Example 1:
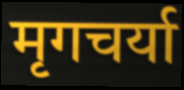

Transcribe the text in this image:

मृगचर्या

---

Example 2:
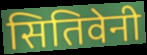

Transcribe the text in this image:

सितिवेनी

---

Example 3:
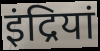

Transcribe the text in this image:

इंद्रियां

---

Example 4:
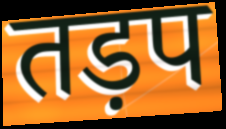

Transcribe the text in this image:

तड़प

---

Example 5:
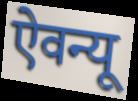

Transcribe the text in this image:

ऐवन्यू